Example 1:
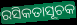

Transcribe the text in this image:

ରସିକତାସୂଚକ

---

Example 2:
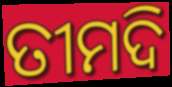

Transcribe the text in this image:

ତୀମଦି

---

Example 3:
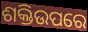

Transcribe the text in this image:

ଶକ୍ତିଉପରେ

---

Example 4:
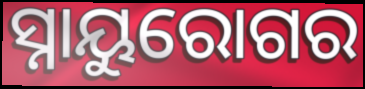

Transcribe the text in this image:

ସ୍ନାୟୁରୋଗର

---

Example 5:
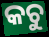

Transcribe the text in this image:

କଚୁ